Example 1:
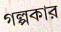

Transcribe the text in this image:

গল্পকার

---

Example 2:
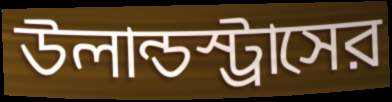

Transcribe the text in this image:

উলান্ডস্ট্রাসের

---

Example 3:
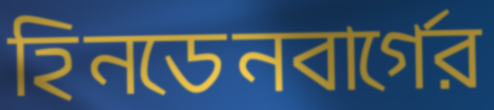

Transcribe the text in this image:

হিনডেনবার্গের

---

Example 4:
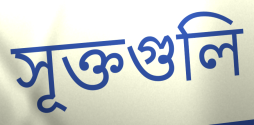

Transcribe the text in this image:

সূক্তগুলি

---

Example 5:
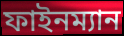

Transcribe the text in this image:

ফাইনম্যান